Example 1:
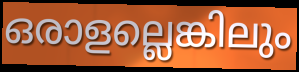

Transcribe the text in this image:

ഒരാളല്ലെങ്കിലും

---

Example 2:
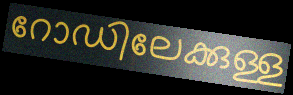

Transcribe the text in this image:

റോഡിലേക്കുള്ള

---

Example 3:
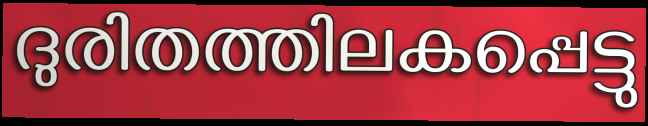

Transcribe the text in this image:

ദുരിതത്തിലകപ്പെട്ടു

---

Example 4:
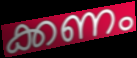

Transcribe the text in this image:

ക്കണം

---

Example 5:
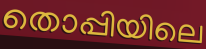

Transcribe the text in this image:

തൊപ്പിയിലെ